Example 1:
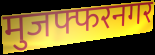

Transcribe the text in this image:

मुजफ्फरनगर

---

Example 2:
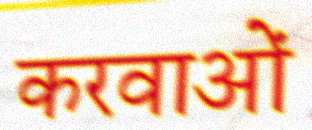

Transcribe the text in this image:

करवाओं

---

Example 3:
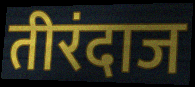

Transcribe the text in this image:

तीरंदाज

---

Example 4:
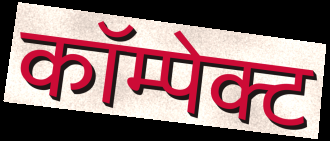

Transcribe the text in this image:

कॉम्पेक्ट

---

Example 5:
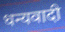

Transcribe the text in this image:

धन्यवादी